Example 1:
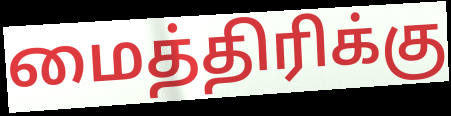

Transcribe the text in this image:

மைத்திரிக்கு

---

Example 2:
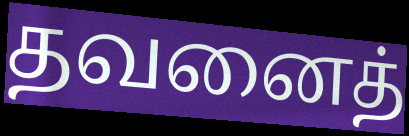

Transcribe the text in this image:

தவனைத்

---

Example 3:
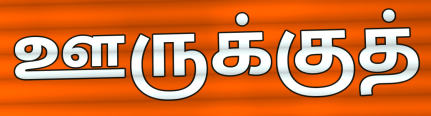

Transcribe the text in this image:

ஊருக்குத்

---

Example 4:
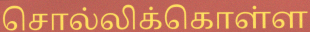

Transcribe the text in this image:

சொல்லிக்கொள்ள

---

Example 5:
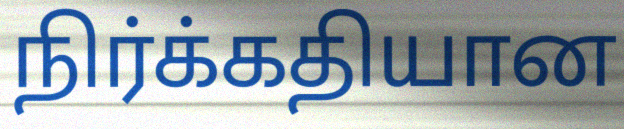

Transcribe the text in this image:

நிர்க்கதியான